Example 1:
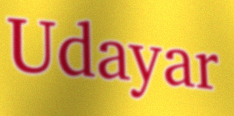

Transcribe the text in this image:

Udayar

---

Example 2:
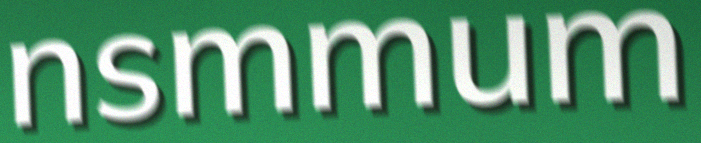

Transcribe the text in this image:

nsmmum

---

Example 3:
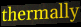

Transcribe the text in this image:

thermally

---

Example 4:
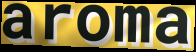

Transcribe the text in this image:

aroma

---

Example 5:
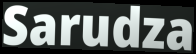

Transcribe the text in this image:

Sarudza